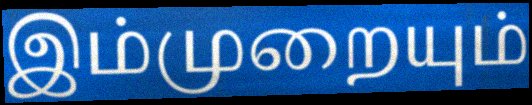
இம்முறையும்